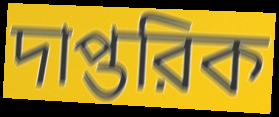
দাপ্তরিক